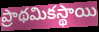
ప్రాథమికస్థాయి